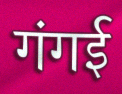
गंगई